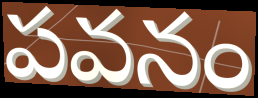
పవనం